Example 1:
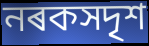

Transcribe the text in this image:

নৰকসদৃশ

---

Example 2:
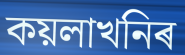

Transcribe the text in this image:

কয়লাখনিৰ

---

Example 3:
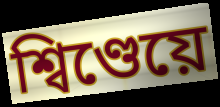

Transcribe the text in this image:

শ্বিণ্ডেয়ে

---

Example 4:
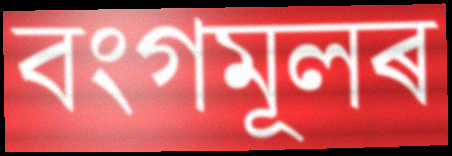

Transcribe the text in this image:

বংগমূলৰ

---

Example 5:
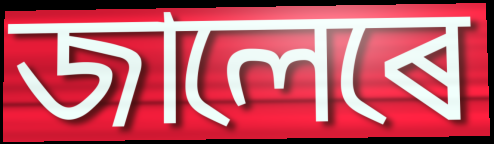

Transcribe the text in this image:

জালেৰে